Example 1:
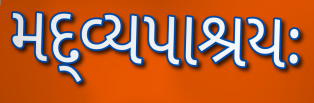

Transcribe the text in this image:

મદ્વ્યપાશ્રયઃ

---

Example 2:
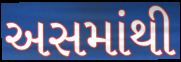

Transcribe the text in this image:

અસમાંથી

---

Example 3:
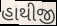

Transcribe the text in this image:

હાથીજી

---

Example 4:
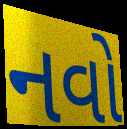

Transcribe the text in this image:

નવો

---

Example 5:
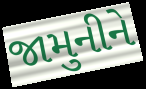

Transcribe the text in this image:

જામુનીને